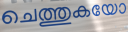
ചെത്തുകയോ